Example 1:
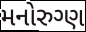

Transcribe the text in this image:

મનોરુગ્ણ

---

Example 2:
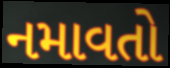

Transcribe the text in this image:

નમાવતો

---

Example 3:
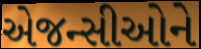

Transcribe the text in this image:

એજન્સીઓને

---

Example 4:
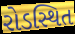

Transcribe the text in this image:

રોડસ્થિત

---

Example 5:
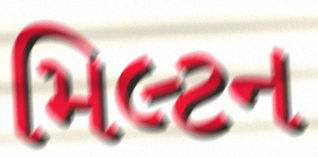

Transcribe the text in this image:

મિલ્ટન